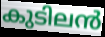
കുടിലൻ